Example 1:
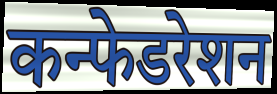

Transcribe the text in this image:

कन्‍फेडरेशन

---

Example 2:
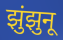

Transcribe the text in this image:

झुंझुनू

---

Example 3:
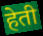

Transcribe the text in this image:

हेती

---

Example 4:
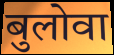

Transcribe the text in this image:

बुलोवा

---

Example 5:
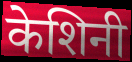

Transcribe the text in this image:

केशिनी